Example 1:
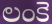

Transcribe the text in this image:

లంకె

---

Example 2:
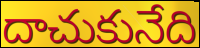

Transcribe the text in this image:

దాచుకునేది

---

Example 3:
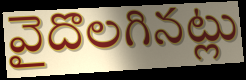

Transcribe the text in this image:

వైదొలగినట్లు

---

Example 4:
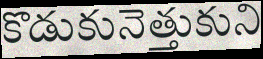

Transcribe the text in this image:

కొడుకునెత్తుకుని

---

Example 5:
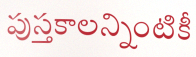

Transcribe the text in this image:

పుస్తకాలన్నింటికీ